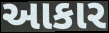
આકાર